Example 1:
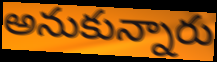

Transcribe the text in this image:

అనుకున్నారు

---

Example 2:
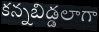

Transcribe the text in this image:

కన్నబిడ్డలాగా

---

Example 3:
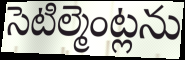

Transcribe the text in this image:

సెటిల్మెంట్లను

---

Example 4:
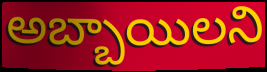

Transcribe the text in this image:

అబ్బాయిలని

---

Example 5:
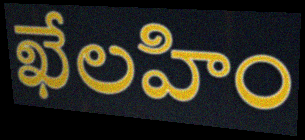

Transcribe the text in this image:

ఖేలహిం